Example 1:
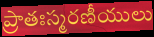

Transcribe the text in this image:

ప్రాతఃస్మరణీయులు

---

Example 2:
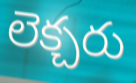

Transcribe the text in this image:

లెక్చరు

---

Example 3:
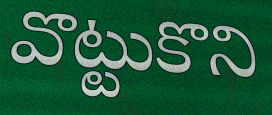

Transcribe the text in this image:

వొట్టుకొని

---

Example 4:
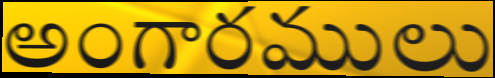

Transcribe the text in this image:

అంగారములు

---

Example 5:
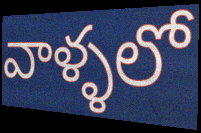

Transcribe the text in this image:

వాళ్ళలో